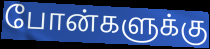
போன்களுக்கு